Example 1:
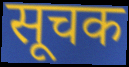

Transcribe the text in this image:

सूचक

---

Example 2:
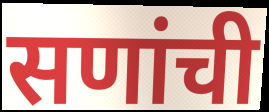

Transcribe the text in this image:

सणांची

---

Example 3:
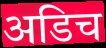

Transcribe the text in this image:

अडिच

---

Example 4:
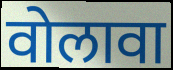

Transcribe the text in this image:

वोलावा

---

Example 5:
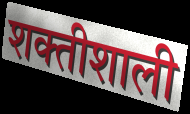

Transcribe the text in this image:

शक्‍तीशाली